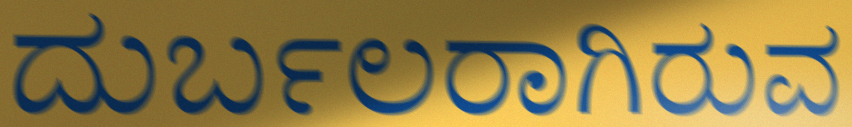
ದುರ್ಬಲರಾಗಿರುವ